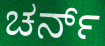
ಚರ್ನ್